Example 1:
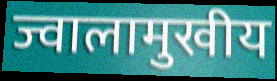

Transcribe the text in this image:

ज्वालामुखीय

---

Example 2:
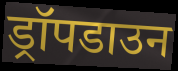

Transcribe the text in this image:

ड्रॉपडाउन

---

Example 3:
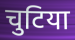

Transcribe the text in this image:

चुटिया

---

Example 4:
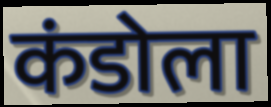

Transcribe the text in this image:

कंडोला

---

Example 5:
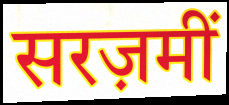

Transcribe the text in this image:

सरज़मीं